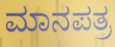
ಮಾನಪತ್ರ